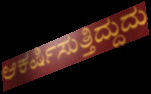
ಆಕರ್ಷಿಸುತ್ತಿದ್ದುದು